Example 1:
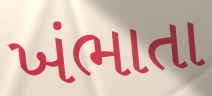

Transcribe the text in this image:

ખંભાતા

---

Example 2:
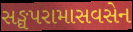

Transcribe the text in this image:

સઙ્ઘપરામાસવસેન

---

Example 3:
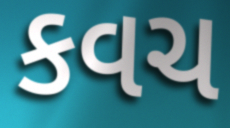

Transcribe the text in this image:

કવચ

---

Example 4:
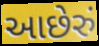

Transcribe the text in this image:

આછેરું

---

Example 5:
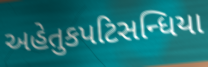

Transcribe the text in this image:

અહેતુકપટિસન્ધિયા